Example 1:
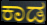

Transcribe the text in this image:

ಕಾಡ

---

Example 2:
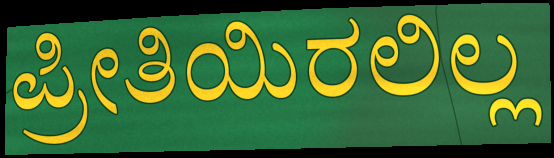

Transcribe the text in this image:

ಪ್ರೀತಿಯಿರಲಿಲ್ಲ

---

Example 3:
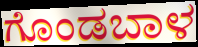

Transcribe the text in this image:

ಗೊಂಡಬಾಳ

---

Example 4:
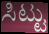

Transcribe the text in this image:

ಸಿಟ್ಟು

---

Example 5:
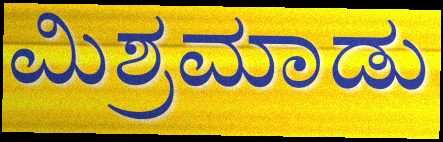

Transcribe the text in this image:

ಮಿಶ್ರಮಾಡು